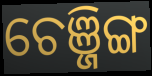
ଚେଞ୍ଜିଙ୍ଗ